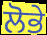
ਲੋਭੇ